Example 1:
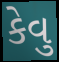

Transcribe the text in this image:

કેવુ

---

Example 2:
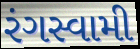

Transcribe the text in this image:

રંગસ્વામી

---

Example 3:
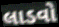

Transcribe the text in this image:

લાડવો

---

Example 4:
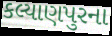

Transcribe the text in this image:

કલ્યાણપુરના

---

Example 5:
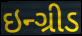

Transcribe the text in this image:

ઇન્ગ્રીડ